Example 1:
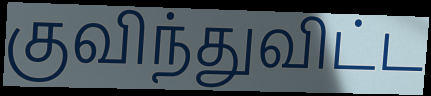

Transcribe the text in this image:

குவிந்துவிட்ட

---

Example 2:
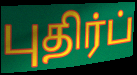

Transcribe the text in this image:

புதிர்ப்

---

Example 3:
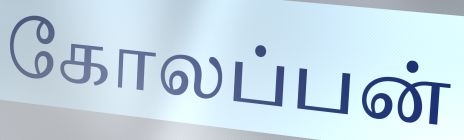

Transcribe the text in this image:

கோலப்பன்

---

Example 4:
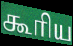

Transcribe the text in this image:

கூரிய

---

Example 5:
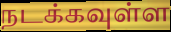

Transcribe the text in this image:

நடக்கவுள்ள